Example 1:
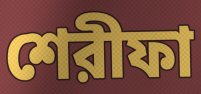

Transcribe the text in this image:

শেরীফা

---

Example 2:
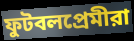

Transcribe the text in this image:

ফুটবলপ্রেমীরা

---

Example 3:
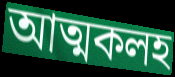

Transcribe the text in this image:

আত্মকলহ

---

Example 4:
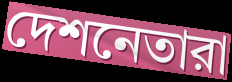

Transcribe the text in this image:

দেশনেতারা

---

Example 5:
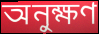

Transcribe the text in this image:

অনুক্ষণ